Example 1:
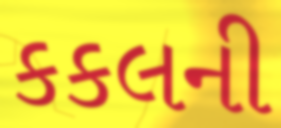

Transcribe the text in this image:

કકલની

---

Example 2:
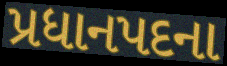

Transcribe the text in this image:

પ્રધાનપદના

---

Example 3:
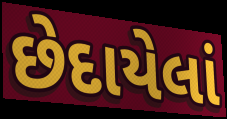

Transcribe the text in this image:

છેદાયેલાં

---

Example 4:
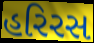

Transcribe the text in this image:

હરિરસ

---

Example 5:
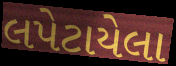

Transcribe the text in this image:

લપેટાયેલા